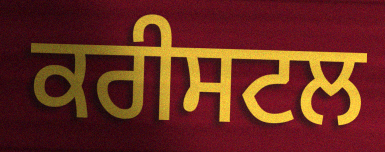
ਕਰੀਸਟਲ